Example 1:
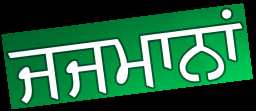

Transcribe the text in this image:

ਜਜਮਾਨਾਂ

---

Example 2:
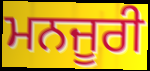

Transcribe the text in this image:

ਮਨਜੂਰੀ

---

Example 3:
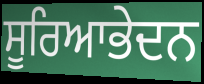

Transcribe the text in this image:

ਸੂਰਿਆਭੇਦਨ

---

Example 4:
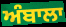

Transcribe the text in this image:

ਅੰਬਾਲਾ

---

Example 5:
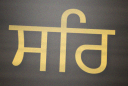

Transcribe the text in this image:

ਸਰਿ